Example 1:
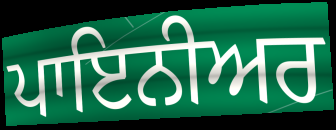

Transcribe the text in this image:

ਪਾਇਨੀਅਰ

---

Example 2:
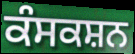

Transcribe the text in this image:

ਕੰਸਕਸ਼ਨ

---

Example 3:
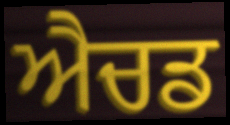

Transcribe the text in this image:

ਐਚਡ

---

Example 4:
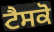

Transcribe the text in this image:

ਟੈਸਕੋ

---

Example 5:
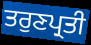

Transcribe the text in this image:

ਤਰੁਣਪ੍ਰਤੀ